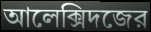
আলেক্সিদজের